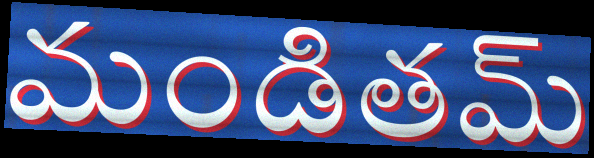
మండితమ్